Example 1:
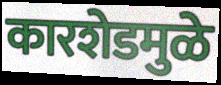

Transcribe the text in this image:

कारशेडमुळे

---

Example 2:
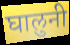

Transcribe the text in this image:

घालुनी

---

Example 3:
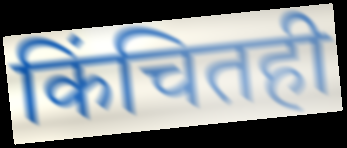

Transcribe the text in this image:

किंचितही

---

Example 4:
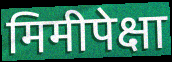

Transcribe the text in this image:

मिमीपेक्षा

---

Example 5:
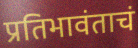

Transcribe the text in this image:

प्रतिभावंताचं